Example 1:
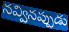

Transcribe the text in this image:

నవ్వినప్పుడు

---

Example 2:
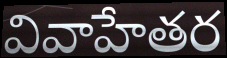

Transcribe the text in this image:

వివాహేతర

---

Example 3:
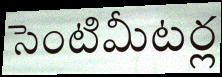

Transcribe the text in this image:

సెంటిమీటర్ల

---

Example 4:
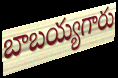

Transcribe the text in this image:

బాబయ్యగారు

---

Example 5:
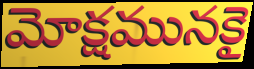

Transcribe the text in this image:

మోక్షమునకై